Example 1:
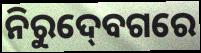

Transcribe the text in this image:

ନିରୁଦ୍‍ବେଗରେ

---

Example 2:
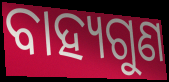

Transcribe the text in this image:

ବାହ୍ୟଗୁଣ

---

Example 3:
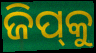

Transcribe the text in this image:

ଜିପ୍‌କୁ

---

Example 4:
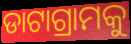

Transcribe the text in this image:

ଡାଟାଗ୍ରାମକୁ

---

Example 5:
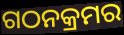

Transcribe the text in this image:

ଗଠନକ୍ରମର